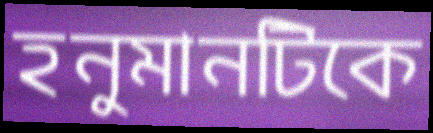
হনুমানটিকে